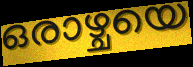
ഒരാഴ്ചയെ